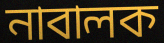
নাবালক